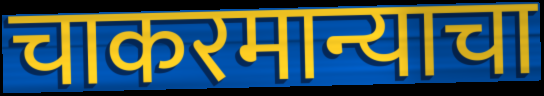
चाकरमान्याचा